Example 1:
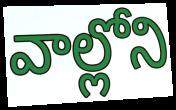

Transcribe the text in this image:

వాల్లోని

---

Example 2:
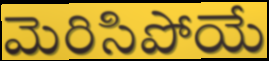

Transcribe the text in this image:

మెరిసిపోయే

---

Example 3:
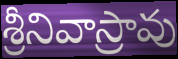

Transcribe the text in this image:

శ్రీనివాస్రావు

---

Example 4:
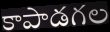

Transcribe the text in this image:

కాపాడగల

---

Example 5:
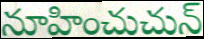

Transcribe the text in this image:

నూహించుచున్